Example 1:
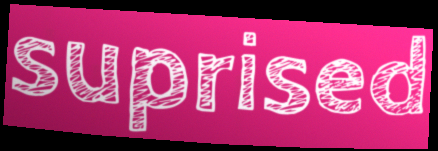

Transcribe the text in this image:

suprised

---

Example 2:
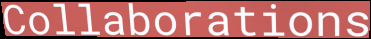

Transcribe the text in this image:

Collaborations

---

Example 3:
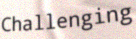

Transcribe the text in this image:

Challenging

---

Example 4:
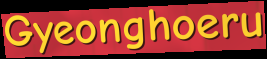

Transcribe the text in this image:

Gyeonghoeru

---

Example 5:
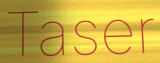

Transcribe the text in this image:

Taser